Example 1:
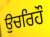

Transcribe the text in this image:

ਉਚਰਿਹੌ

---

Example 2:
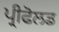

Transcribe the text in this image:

ਪ੍ਰੀਫੋਲਡ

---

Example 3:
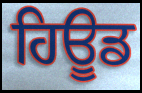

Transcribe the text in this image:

ਹਿਊਡ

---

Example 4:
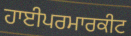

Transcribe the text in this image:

ਹਾਈਪਰਮਾਰਕੀਟ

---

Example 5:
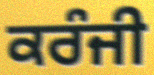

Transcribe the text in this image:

ਕਰੰਜੀ